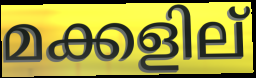
മക്കളില്